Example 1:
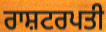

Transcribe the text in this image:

ਰਾਸ਼ਟਰਪਤੀ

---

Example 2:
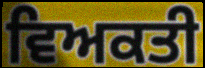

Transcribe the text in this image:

ਵਿਅਕਤੀ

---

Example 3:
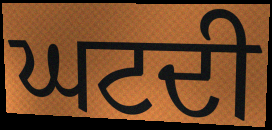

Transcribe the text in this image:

ਘਟਦੀ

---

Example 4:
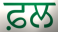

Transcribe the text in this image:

ਫ਼ਲ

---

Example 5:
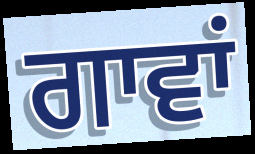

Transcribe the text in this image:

ਗਾਵਾਂ